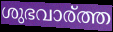
ശുഭവാര്ത്ത